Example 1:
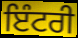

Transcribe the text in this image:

ਇੰਟਰੀ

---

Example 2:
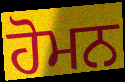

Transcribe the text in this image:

ਹੋਮਨ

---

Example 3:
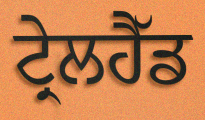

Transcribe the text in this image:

ਟ੍ਰੇਲਹੈੱਡ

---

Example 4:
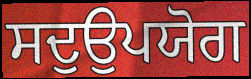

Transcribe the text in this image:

ਸਦੁਉਪਯੋਗ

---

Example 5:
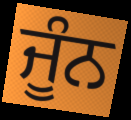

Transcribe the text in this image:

ਜੂੰਨ